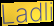
Ladli